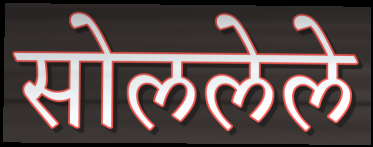
सोललेले